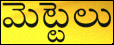
మెట్టెలు